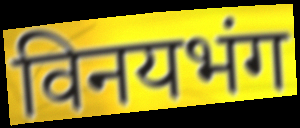
विनयभंग